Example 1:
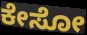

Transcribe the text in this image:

ಕೇಸೋ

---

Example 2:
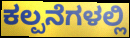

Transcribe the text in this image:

ಕಲ್ಪನೆಗಳಲ್ಲಿ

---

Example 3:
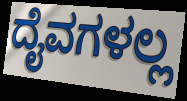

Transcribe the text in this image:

ದೈವಗಳಲ್ಲ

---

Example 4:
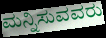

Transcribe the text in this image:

ಮನ್ನಿಸುವವರು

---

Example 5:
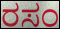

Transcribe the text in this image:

ರಸಂ